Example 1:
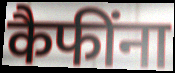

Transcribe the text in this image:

कैफींना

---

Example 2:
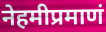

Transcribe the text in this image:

नेहमीप्रमाणं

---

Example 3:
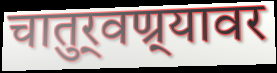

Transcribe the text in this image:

चातुर्वण्र्यावर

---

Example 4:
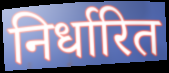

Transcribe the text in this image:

निर्धारित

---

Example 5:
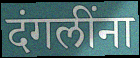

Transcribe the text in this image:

दंगलींना